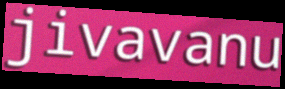
jivavanu